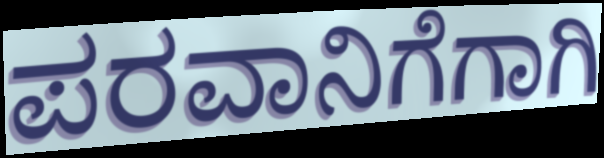
ಪರವಾನಿಗೆಗಾಗಿ